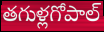
తగుళ్లగోపాల్